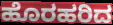
ಹೊರಹರಿದ